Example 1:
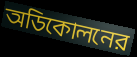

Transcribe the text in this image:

অডিকোলনের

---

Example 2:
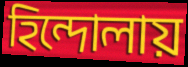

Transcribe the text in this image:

হিন্দোলায়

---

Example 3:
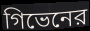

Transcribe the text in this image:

গিভেনের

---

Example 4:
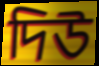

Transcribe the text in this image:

দিউ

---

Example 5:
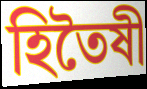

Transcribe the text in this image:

হিতৈষী